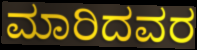
ಮಾರಿದವರ